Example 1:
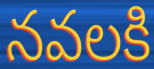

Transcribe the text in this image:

నవలకి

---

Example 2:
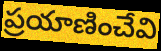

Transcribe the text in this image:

ప్రయాణించేవి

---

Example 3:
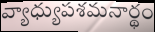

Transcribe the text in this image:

వ్యాధ్యుపశమనార్థం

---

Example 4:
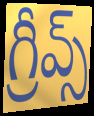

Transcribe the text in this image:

గ్రీవ్స్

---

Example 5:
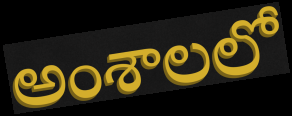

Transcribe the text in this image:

అంశాలలో